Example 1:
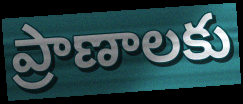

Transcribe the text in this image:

ప్రాణాలకు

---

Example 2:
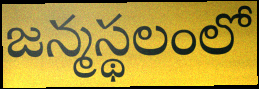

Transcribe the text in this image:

జన్మస్థలంలో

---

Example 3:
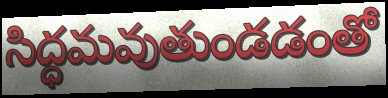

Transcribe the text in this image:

సిద్ధమవుతుండడంతో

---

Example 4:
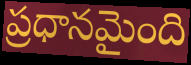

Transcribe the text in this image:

ప్రధానమైంది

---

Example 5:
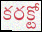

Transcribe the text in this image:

కరక్టో